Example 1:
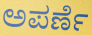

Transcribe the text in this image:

ಅಪರ್ಣೆ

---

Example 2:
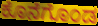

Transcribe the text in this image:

ಕೊನೆಗೊಂಡ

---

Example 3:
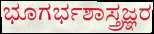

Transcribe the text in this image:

ಭೂಗರ್ಭಶಾಸ್ತ್ರಜ್ಞರ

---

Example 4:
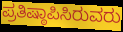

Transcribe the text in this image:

ಪ್ರತಿಷ್ಠಾಪಿಸಿರುವರು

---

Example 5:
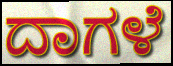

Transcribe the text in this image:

ದಾಗಳೆ